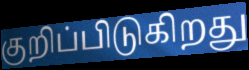
குறிப்பிடுகிறது